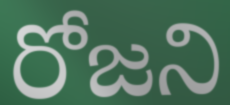
రోజని